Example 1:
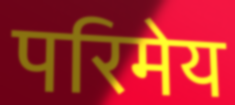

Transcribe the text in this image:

परिमेय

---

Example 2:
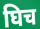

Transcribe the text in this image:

घिच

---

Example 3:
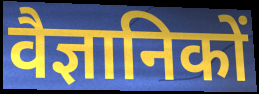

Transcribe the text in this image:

वैज्ञानिकों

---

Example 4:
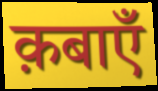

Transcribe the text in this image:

क़बाएँ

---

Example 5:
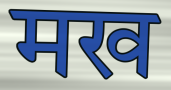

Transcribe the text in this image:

मख